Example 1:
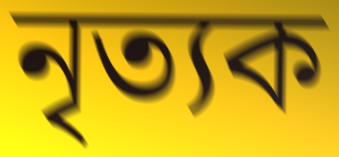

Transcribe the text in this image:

নৃত্যক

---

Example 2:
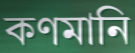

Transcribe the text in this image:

কণমানি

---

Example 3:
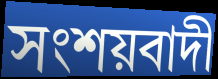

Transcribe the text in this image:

সংশয়বাদী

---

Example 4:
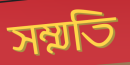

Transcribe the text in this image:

সম্মতি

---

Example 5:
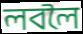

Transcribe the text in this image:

লবলৈ